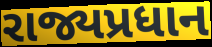
રાજ્યપ્રધાન